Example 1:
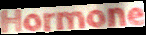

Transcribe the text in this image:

Hormone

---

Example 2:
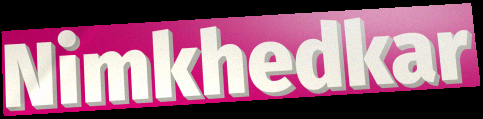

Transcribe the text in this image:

Nimkhedkar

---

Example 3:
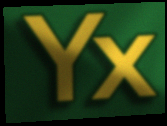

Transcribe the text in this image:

Yx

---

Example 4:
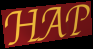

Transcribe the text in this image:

HAP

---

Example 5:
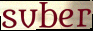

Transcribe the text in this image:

suber